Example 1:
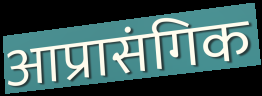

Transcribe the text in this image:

आप्रासंगिक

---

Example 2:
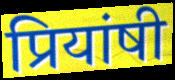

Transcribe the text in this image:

प्रियांषी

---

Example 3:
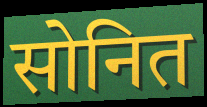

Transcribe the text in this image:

सोनित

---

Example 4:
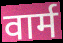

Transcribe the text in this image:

वार्म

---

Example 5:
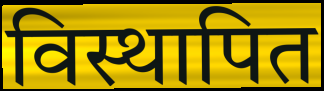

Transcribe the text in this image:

विस्थापित